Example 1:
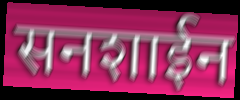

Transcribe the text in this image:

सनशाईन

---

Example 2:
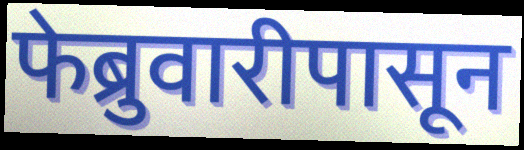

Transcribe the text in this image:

फेब्रुवारीपासून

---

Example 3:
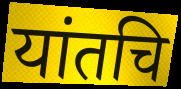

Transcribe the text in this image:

यांतचि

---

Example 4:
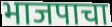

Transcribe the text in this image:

भाजपाचा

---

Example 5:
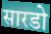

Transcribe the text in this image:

सारडो